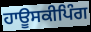
ਹਾਊਸਕੀਪਿੰਗ